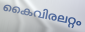
കൈവിരലറ്റം